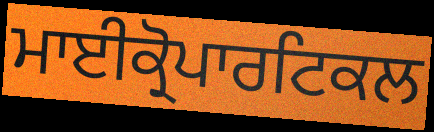
ਮਾਈਕ੍ਰੋਪਾਰਟਿਕਲ